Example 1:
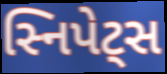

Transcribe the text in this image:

સ્નિપેટ્સ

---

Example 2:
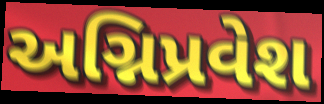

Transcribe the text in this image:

અગ્નિપ્રવેશ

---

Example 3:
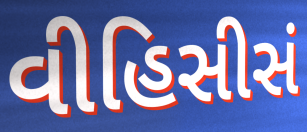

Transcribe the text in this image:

વીહિસીસં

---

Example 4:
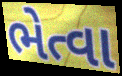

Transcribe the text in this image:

ભેત્વા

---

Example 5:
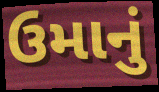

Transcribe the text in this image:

ઉમાનું